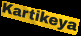
Kartikeya